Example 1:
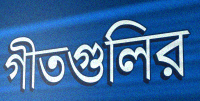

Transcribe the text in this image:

গীতগুলির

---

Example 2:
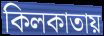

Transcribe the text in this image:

কিলকাতায়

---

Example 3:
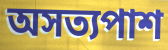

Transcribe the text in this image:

অসত্যপাশ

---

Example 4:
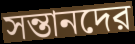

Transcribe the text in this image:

সন্তানদের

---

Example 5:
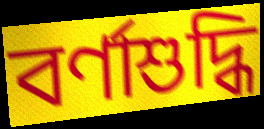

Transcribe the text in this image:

বর্ণাশুদ্ধি